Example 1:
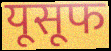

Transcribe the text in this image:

यूसूफ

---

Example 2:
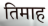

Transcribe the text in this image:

तिमाह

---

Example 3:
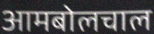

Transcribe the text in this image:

आमबोलचाल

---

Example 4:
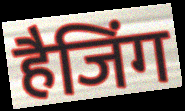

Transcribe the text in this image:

हैजिंग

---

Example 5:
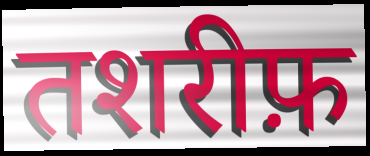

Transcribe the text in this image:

तशरीफ़